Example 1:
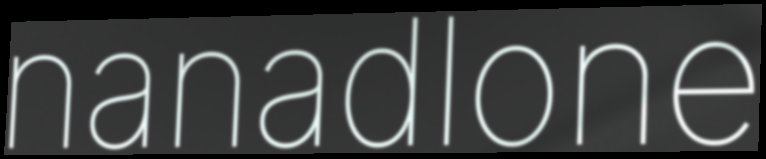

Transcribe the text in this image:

nanadlone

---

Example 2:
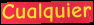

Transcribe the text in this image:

Cualquier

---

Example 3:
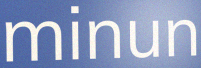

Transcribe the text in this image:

minun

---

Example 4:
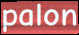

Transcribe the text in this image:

palon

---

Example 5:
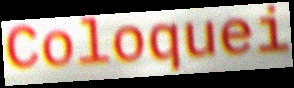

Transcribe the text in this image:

Coloquei